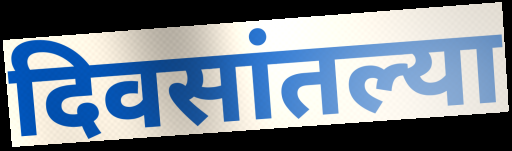
दिवसांतल्या